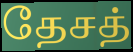
தேசத்